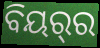
ବିୟର୍‌ର